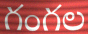
గంగల